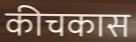
कीचकास